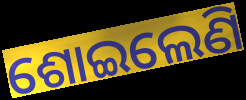
ଶୋଇଲେଣି